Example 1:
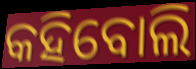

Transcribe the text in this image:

କହିବୋଲି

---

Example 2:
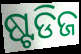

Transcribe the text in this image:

ଷ୍ଟଡିଜ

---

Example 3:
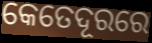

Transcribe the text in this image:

କେତେଦୂରରେ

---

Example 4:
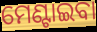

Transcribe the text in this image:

ମେଣ୍ଟାଇବା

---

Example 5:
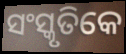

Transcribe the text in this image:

ସଂସ୍କୃତିକେ